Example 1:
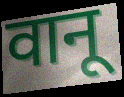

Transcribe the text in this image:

वानू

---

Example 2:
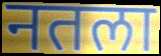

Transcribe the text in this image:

नतला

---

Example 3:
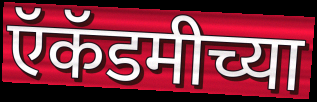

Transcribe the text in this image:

ऍकॅडमीच्या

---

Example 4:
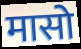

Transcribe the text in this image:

मासो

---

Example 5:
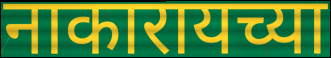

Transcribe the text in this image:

नाकारायच्या